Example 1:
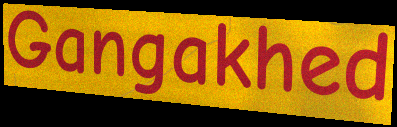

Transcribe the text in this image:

Gangakhed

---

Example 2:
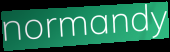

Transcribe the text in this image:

normandy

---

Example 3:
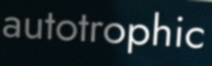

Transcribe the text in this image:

autotrophic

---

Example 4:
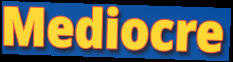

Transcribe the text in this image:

Mediocre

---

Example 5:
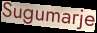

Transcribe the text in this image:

Sugumarje